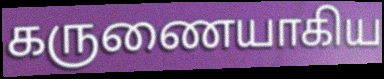
கருணையாகிய